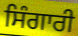
ਸਿੰਗਾਰੀ